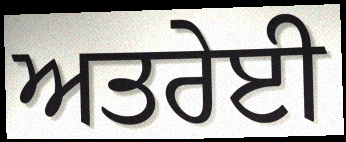
ਅਤਰੇਈ